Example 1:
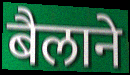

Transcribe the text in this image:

बैलाने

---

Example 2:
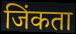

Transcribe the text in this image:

जिंकता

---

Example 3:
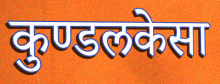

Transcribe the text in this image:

कुण्डलकेसा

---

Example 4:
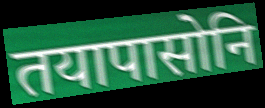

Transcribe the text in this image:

तयापासोनि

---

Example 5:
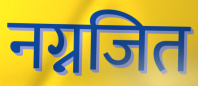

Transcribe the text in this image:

नग्नजित